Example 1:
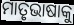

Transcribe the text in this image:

ମାତୃଭାଷାକୁ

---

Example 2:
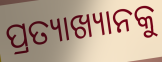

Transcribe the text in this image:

ପ୍ରତ୍ୟାଖ୍ୟାନକୁ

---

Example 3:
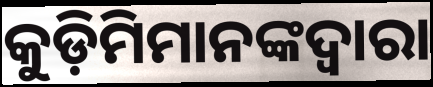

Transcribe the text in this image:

କୁଡ଼ିମିମାନଙ୍କଦ୍ୱାରା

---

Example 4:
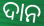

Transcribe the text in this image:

ଦାନ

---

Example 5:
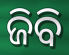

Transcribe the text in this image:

ଜିବି